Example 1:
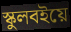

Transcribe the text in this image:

স্কুলবইয়ে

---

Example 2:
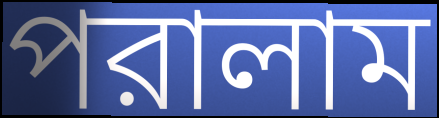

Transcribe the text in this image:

পরালাম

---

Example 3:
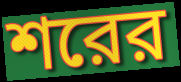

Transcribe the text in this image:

শরের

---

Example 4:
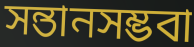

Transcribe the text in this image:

সন্তানসম্ভবা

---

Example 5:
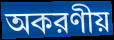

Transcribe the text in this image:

অকরণীয়